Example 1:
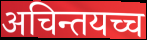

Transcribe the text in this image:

अचिन्तयच्च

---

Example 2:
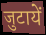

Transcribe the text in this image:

जुटायें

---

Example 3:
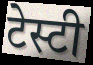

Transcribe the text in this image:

टेस्‍टी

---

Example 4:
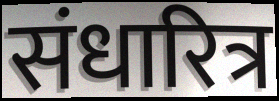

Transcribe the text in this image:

संधारित्र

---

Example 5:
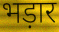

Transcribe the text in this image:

भड़ार